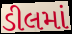
ડીલમાં